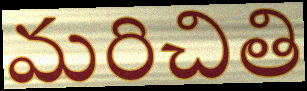
మరిచితి